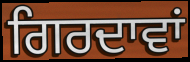
ਗਿਰਦਾਵਾਂ